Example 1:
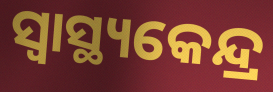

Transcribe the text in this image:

ସ୍ୱାସ୍ଥ୍ୟକେନ୍ଦ୍ର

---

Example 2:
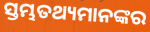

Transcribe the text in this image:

ସ୍ତମ୍ଭତଥ୍ୟମାନଙ୍କର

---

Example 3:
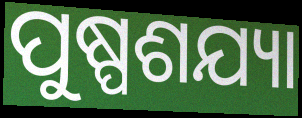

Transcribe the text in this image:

ପୁଷ୍ପଶଯ୍ୟା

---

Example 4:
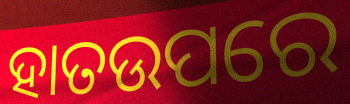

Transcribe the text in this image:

ହାତଉପରେ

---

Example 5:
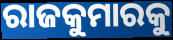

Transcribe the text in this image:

ରାଜକୁମାରକୁ